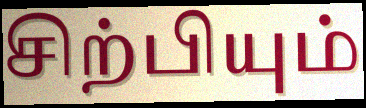
சிற்பியும்